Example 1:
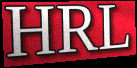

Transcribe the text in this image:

HRL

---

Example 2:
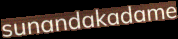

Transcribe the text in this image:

sunandakadame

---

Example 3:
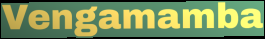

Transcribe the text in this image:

Vengamamba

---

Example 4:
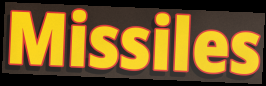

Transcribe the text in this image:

Missiles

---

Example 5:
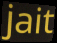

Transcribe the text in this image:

jait